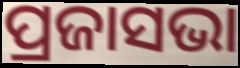
ପ୍ରଜାସଭା